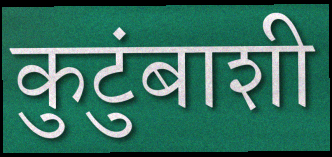
कुटुंबाशी